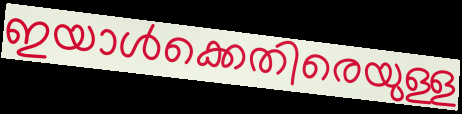
ഇയാൾക്കെതിരെയുള്ള